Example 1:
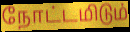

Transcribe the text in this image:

நோட்டமிடும்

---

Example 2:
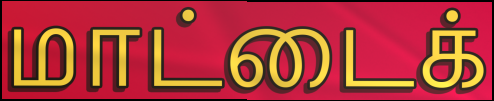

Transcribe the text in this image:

மாட்டைக்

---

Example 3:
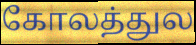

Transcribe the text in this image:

கோலத்துல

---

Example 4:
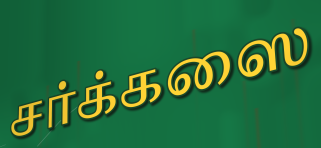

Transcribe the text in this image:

சர்க்கஸை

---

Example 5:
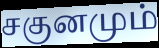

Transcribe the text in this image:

சகுனமும்